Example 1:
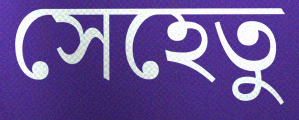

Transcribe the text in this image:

সেহেতু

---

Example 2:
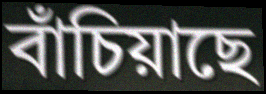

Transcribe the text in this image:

বাঁচিয়াছে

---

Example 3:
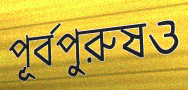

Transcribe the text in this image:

পূর্বপুরুষও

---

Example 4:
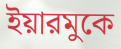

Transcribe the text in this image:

ইয়ারমুকে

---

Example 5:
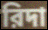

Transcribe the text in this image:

রিদা